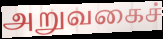
அறுவகைச்